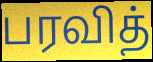
பரவித்